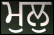
ਮੁਲੁ